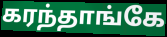
கரந்தாங்கே